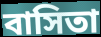
বাসিতা